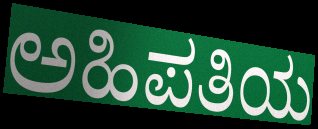
ಅಹಿಪತಿಯ